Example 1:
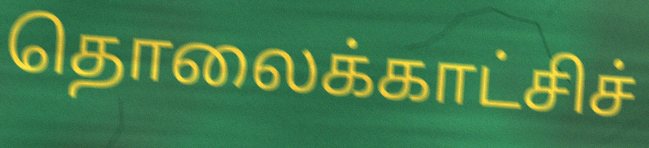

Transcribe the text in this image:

தொலைக்காட்சிச்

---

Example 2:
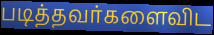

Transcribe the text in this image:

படித்தவர்களைவிட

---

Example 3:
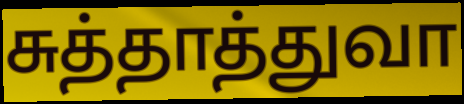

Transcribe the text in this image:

சுத்தாத்துவா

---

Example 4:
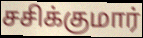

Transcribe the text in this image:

சசிக்குமார்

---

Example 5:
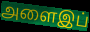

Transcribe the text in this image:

அளைஇப்